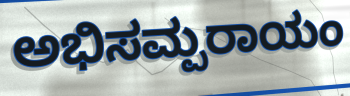
ಅಭಿಸಮ್ಪರಾಯಂ